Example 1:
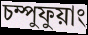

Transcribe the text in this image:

চম্পুফুয়াং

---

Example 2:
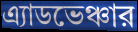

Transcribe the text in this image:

এ্যাডভেঞ্চার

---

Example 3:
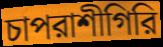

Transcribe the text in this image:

চাপরাশীগিরি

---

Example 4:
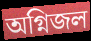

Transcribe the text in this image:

অগ্নিজল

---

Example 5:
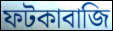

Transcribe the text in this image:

ফটকাবাজি